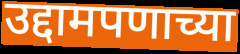
उद्दामपणाच्या